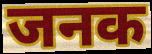
जनक